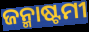
ଜନ୍ମାଷ୍ଟମୀ